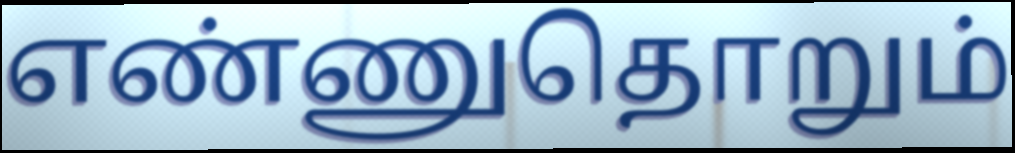
எண்ணுதொறும்